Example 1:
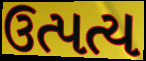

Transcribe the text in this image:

ઉત્પત્ય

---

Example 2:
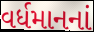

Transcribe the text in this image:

વર્ધમાનનાં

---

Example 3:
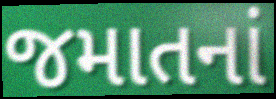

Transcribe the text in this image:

જમાતનાં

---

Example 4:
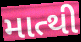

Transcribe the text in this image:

માત્થી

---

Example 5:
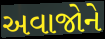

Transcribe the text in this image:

અવાજોને